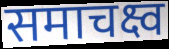
समाचक्ष्व